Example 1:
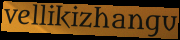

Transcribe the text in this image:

vellikizhangu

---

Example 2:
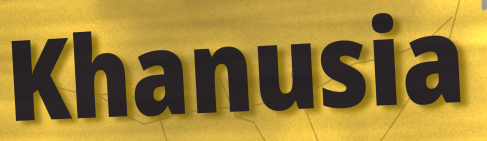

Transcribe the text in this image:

Khanusia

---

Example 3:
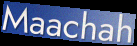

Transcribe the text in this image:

Maachah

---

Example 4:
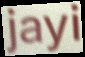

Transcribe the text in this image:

jayi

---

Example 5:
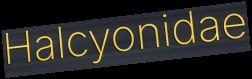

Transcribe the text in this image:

Halcyonidae